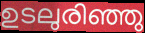
ഉടലുരിഞ്ഞു